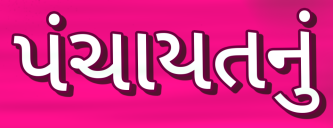
પંચાયતનું